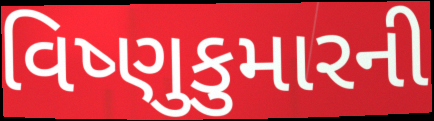
વિષ્ણુકુમારની